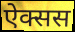
ऐक्सस